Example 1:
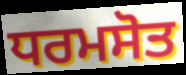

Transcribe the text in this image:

ਧਰਮਸੋਤ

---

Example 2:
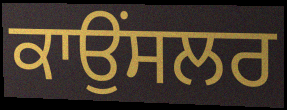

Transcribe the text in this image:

ਕਾਉਂਸਲਰ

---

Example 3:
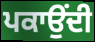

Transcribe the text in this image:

ਪਕਾਉਂਦੀ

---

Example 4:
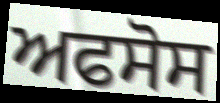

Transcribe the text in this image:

ਅਫਸੋਸ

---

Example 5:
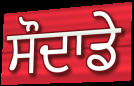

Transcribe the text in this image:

ਸੌਦਾਡੇ